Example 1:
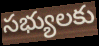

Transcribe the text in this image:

సభ్యులకు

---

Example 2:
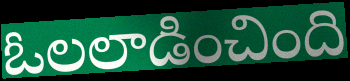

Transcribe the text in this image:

ఓలలాడించింది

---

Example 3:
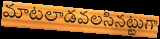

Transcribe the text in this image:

మాటలాడవలసినట్టుగా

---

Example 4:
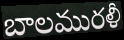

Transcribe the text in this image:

బాలమురళీ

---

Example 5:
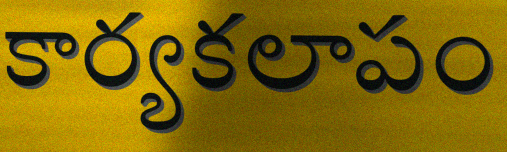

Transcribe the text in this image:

కార్యకలాపం